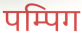
पम्पिग